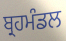
ਬ੍ਰਹਮੰਡਲ